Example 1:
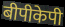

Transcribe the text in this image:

बीपीकेपी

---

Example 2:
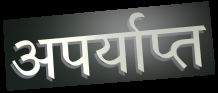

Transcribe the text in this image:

अपर्याप्त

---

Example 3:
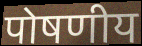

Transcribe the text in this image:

पोषणीय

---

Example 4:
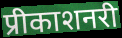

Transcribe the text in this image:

प्रीकाशनरी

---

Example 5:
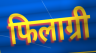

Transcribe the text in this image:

फिलाग्री